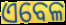
ଏବେଳ